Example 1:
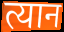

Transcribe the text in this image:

त्यान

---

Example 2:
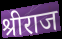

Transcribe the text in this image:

श्रीराज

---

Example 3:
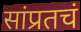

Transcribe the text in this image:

सांप्रतचं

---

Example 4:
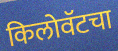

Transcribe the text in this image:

किलोवॅटचा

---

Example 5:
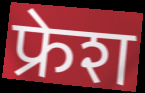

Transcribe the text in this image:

फ्रेश